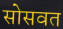
सोसवत